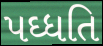
પઘ્ધતિ